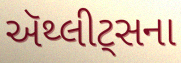
ઍથ્લીટ્સના